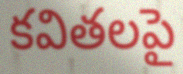
కవితలపై